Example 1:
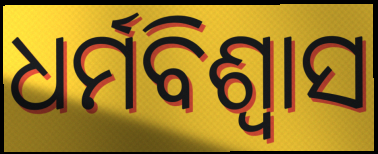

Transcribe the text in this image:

ଧର୍ମବିଶ୍ଵାସ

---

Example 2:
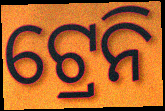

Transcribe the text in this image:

ଟ୍ରେନି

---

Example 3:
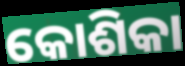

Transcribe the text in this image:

କୋଶିକା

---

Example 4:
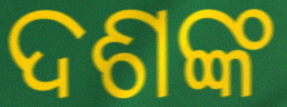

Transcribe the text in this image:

ଦଶଙ୍କ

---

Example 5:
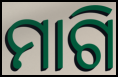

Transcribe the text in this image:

ମାଗି